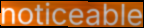
noticeable